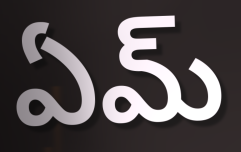
ఏమ్